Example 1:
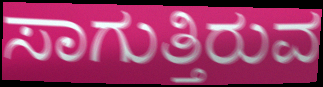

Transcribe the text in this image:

ಸಾಗುತ್ತಿರುವ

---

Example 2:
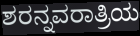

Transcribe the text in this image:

ಶರನ್ನವರಾತ್ರಿಯ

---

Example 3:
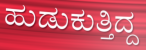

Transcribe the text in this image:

ಹುಡುಕುತ್ತಿದ್ದ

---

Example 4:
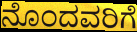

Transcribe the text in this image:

ನೊಂದವರಿಗೆ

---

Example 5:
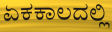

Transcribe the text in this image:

ಏಕಕಾಲದಲ್ಲಿ